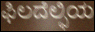
ಫಿಲದೆಲ್ಫಿಯ